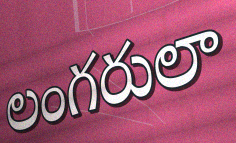
లంగరులా